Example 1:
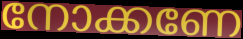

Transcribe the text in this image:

നോക്കണേ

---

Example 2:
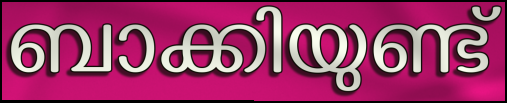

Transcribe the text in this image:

ബാക്കിയുണ്ട്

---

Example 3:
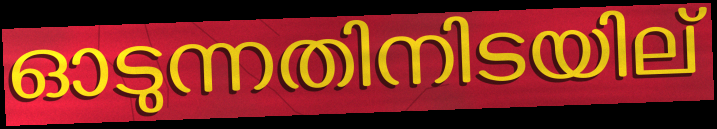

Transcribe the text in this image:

ഓടുന്നതിനിടയില്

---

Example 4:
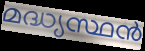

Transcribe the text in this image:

മദ്ധ്യസ്ഥൻ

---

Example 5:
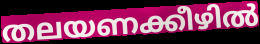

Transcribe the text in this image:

തലയണക്കീഴിൽ